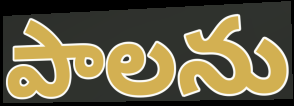
పాలను